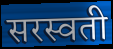
सरस्वती